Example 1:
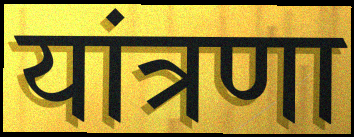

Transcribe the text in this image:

यांत्रणा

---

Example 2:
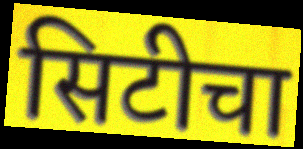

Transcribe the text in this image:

सिटीचा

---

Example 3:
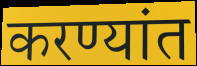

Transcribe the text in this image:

करण्यांत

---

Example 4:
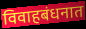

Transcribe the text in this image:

विवाहबंधनात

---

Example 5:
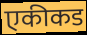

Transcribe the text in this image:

एकीकड